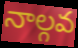
నాల్గవ